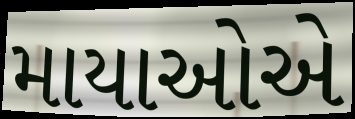
માયાઓએ